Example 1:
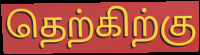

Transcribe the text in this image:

தெற்கிற்கு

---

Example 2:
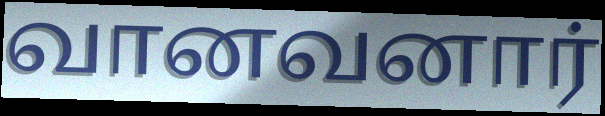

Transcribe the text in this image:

வானவனார்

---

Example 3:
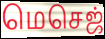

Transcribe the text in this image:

மெசெஜ்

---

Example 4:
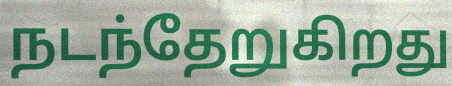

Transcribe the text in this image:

நடந்தேறுகிறது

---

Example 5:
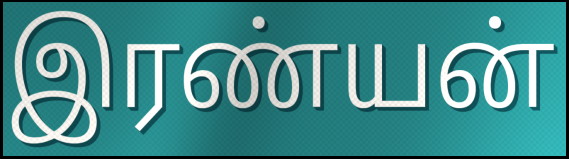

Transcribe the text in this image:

இரண்யன்